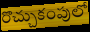
రొచ్చుకంపులో